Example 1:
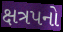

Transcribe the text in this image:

ક્ષત્રપનો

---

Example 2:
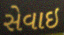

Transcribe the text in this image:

સેવાઇ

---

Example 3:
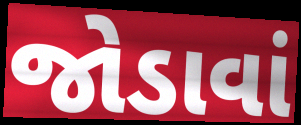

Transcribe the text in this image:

જોડાવાં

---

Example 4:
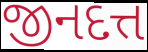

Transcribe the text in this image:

જીનદત્ત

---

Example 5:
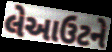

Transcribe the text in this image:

લેઆઉટને